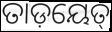
ତାଡ଼ୟେତ୍